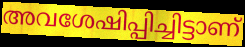
അവശേഷിപ്പിച്ചിട്ടാണ്